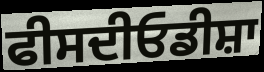
ਫੀਸਦੀਓਡੀਸ਼ਾ